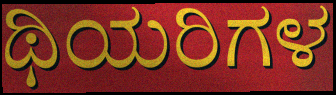
ಥಿಯರಿಗಳ